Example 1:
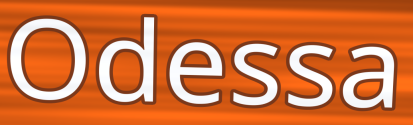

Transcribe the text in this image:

Odessa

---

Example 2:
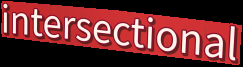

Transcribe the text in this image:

intersectional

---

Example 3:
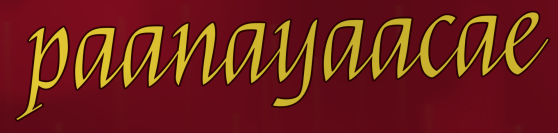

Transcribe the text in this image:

paanayaacae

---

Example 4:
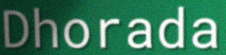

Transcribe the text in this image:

Dhorada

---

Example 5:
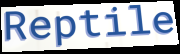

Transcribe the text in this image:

Reptile